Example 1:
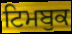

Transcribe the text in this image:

ਟਿਮਬੁਕ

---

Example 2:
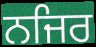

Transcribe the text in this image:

ਨਜਿਰ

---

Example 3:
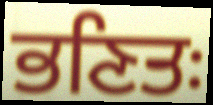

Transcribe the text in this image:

ਭਣਿਤਃ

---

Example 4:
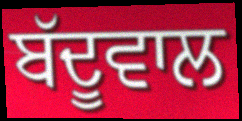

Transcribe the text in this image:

ਬੱਦੂਵਾਲ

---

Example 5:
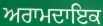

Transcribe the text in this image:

ਅਰਾਮਦਾਇਕ